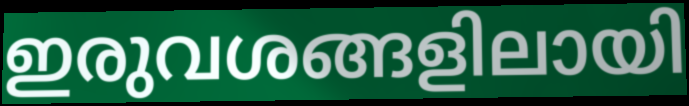
ഇരുവശങ്ങളിലായി